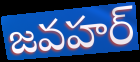
జవహర్